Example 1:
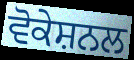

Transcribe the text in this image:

ਵੋਕੇਸ਼ਨਲ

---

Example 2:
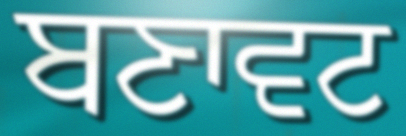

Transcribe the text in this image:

ਬਣਾਵਟ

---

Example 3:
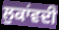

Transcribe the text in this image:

ਲੁਕਾਂਵਦੀ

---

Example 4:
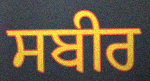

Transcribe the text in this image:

ਸਬੀਰ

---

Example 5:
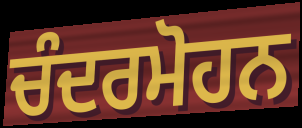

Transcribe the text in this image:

ਚੰਦਰਮੋਹਨ